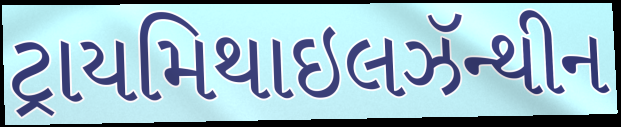
ટ્રાયમિથાઇલઝૅન્થીન